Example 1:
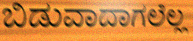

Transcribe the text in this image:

ಬಿಡುವಾದಾಗಲೆಲ್ಲ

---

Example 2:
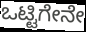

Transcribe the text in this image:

ಒಟ್ಟಿಗೇನೇ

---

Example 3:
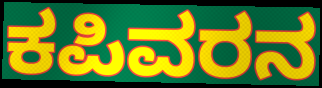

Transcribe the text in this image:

ಕಪಿವರನ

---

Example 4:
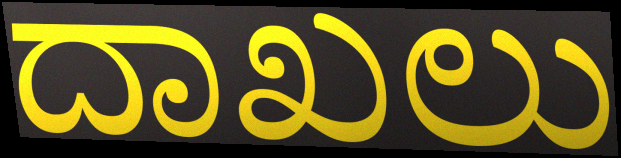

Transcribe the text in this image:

ದಾಖಲು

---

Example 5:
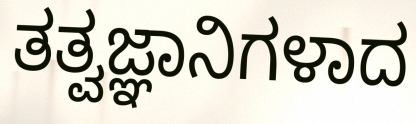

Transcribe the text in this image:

ತತ್ವಜ್ಞಾನಿಗಳಾದ